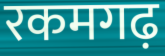
रकमगढ़